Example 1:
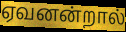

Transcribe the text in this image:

ஏவனன்றால்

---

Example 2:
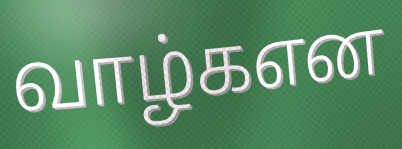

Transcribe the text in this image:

வாழ்கஎன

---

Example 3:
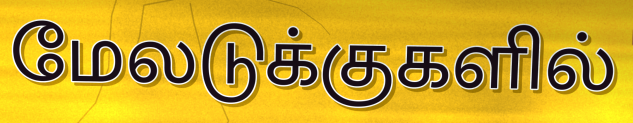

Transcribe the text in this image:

மேலடுக்குகளில்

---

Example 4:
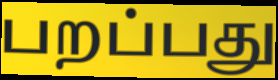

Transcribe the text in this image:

பறப்பது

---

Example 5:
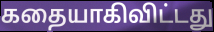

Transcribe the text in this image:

கதையாகிவிட்டது